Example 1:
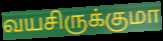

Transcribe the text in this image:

வயசிருக்குமா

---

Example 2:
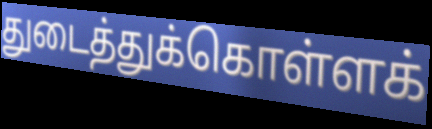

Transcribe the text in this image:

துடைத்துக்கொள்ளக்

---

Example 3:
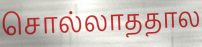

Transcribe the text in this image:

சொல்லாததால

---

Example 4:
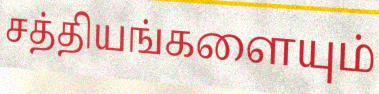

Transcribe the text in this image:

சத்தியங்களையும்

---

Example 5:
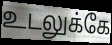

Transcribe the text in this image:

உடலுக்கே